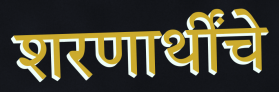
शरणार्थींचे